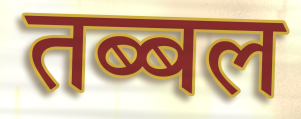
तब्बल